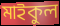
মাইকুল